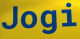
Jogi